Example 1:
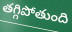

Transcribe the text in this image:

తగ్గిపోతుంది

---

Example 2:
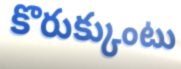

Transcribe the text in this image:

కొరుక్కుంటు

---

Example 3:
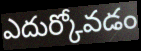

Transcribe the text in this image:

ఎదుర్కోవడం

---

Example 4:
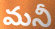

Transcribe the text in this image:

మనీ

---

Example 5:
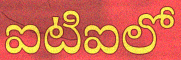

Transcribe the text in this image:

ఐటిఐలో